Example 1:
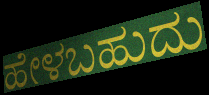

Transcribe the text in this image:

ಹೇಳಬಹುದು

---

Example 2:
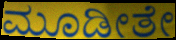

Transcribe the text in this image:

ಮೂಡೀತೇ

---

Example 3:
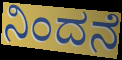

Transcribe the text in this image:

ನಿಂದನೆ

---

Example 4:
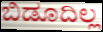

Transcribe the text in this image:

ಬಿಡೂದಿಲ್ಲ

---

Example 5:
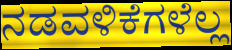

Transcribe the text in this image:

ನಡವಳಿಕೆಗಳೆಲ್ಲ